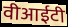
वीआईटी